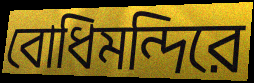
বোধিমন্দিরে